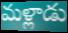
మళ్లాడు